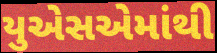
યુએસએમાંથી